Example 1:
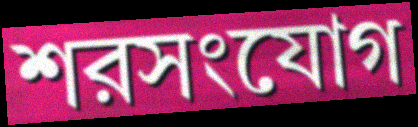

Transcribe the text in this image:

শরসংযোগ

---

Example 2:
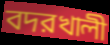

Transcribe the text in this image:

বদরখালী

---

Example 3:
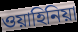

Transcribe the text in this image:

ওয়াহিনিয়া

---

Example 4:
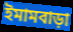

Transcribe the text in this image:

ইমামবাড়া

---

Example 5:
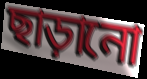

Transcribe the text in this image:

ছাড়ানো